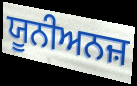
ਯੂਨੀਅਨਜ਼